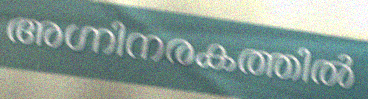
അഗ്നിനരകത്തിൽ